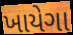
ખાયેગા